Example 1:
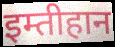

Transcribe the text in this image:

इम्तीहान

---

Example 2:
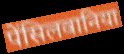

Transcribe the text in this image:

पेंसिलवानिया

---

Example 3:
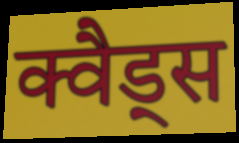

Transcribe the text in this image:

क्वैड्स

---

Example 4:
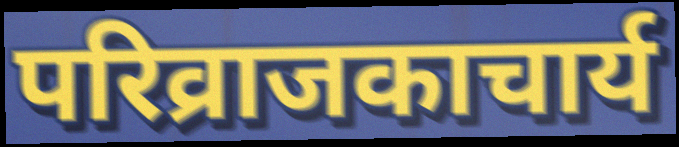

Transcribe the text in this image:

परिव्राजकाचार्य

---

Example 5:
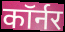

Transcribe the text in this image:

कॉर्नर